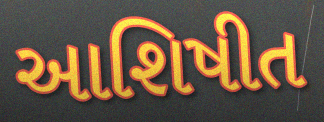
આશિષીત